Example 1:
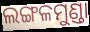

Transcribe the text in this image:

ଲଙ୍ଗଳମୁଣ୍ଡା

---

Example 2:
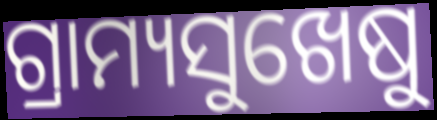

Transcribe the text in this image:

ଗ୍ରାମ୍ୟସୁଖେଷୁ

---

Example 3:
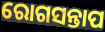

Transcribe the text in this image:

ରୋଗସନ୍ତାପ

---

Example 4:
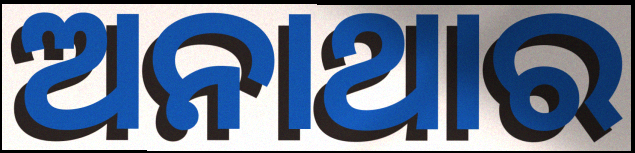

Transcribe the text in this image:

ଅନାଥାର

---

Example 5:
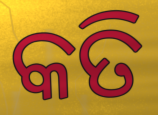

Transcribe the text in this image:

କତି